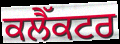
ਕਲੈੱਕਟਰ